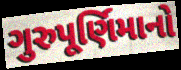
ગુરુપૂર્ણિમાનો